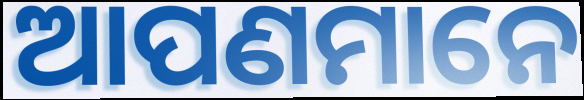
ଆପଣମାନେ